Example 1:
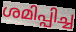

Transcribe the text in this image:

ശമിപ്പിച്ച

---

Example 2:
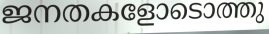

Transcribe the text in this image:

ജനതകളോടൊത്തു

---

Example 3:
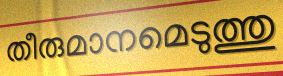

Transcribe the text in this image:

തീരുമാനമെടുത്തു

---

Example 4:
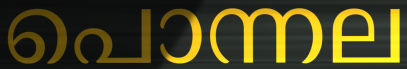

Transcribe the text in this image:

പൊന്നല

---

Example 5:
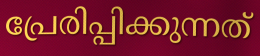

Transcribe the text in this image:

പ്രേരിപ്പിക്കുന്നത്